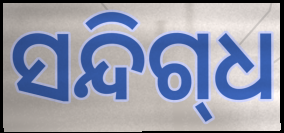
ସନ୍ଦିଗ୍‌ଧ